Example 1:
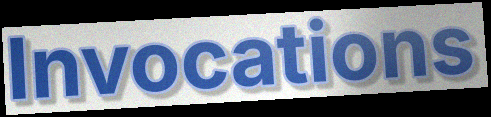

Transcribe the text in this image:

Invocations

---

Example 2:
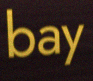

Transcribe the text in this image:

bay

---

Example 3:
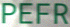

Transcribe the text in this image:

PEFR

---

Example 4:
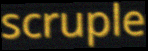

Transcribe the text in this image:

scruple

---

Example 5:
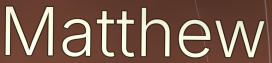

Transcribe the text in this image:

Matthew